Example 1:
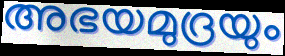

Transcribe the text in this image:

അഭയമുദ്രയും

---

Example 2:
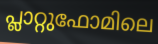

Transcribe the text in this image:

പ്ലാറ്റുഫോമിലെ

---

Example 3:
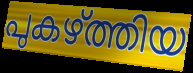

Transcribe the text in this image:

പുകഴ്ത്തിയ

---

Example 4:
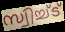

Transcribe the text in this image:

സ്വിച്ച്ട്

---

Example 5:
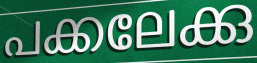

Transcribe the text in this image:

പക്കലേക്കു